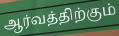
ஆர்வத்திற்கும்